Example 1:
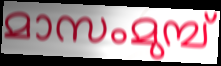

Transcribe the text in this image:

മാസംമുമ്പ്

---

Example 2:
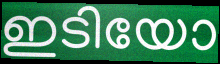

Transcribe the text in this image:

ഇടിയോ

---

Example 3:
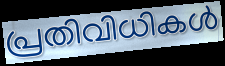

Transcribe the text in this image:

പ്രതിവിധികൾ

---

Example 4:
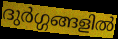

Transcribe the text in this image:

ദുർഗ്ഗങ്ങളിൽ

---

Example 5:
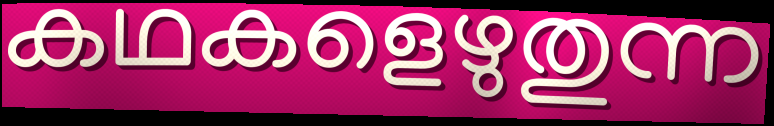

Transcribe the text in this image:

കഥകളെഴുതുന്ന